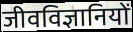
जीवविज्ञानियों